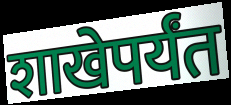
शाखेपर्यंत